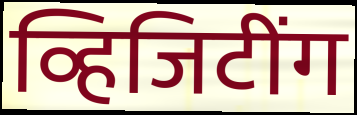
व्हिजिटींग